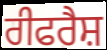
ਰੀਫਰੈਸ਼